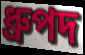
ধ্ৰুপদ